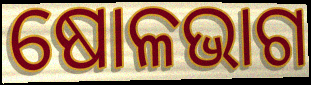
ଷୋଳଭାଗ